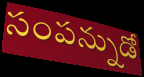
సంపన్నుడో